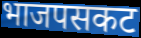
भाजपसकट